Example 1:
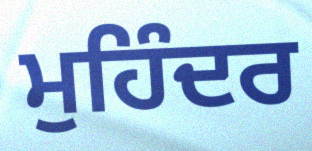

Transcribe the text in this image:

ਮੁਹਿੰਦਰ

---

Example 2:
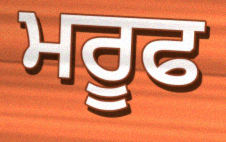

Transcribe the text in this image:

ਮਰੂਫ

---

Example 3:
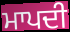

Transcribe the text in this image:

ਮਾਪਦੀ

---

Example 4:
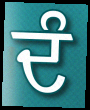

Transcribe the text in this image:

ਦੰ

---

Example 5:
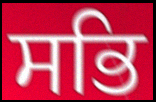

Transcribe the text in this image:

ਸਭਿ